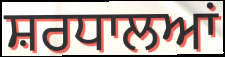
ਸ਼ਰਧਾਲਆਂ